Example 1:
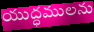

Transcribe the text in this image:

యుద్ధములను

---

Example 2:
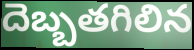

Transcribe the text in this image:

దెబ్బతగిలిన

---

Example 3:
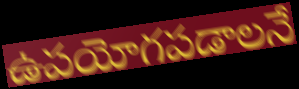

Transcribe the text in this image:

ఉపయోగపడాలనే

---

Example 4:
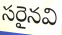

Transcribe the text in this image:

సరైనవి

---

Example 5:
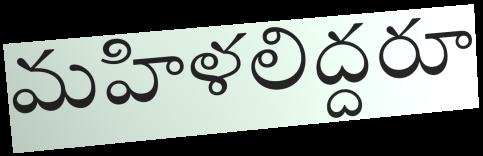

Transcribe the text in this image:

మహిళలిద్దరూ